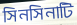
সিনসিনাটি